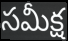
సమీక్ష